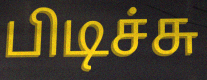
பிடிச்சு